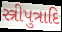
સ્ત્રીપુત્રાદિ